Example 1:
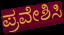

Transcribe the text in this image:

ಪ್ರವೇಶಿಸಿ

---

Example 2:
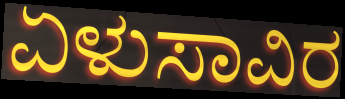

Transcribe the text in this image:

ಏಳುಸಾವಿರ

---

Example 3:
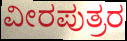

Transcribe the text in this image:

ವೀರಪುತ್ರರ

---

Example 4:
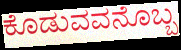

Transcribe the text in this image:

ಕೊಡುವವನೊಬ್ಬ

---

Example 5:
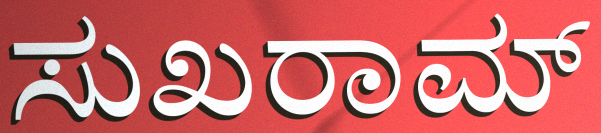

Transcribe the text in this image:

ಸುಖರಾಮ್